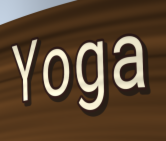
Yoga